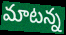
మాటన్న